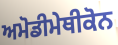
ਅਮੋਡੀਮੇਥੀਕੋਨ